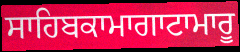
ਸਾਹਿਬਕਾਮਾਗਾਟਾਮਾਰੂ